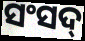
ସଂସଦ୍